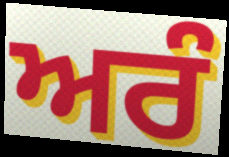
ਅਰੰ